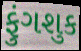
ફુંગશુક